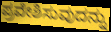
ಪ್ರವೇಶಿಸುವುದನ್ನು